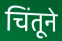
चिंतूने